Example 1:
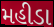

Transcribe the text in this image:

મહીડા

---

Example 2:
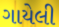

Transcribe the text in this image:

ગાયેલી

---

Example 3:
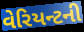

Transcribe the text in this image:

વેરિયન્ટની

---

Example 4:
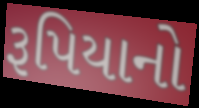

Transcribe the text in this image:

રૂપિયાનો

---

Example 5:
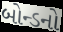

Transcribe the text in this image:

બોન્ડનો